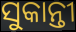
ସୁକାନ୍ତୀ